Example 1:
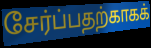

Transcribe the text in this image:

சேர்ப்பதற்காகக்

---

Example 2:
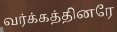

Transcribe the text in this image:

வர்க்கத்தினரே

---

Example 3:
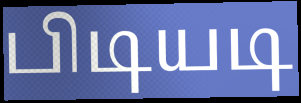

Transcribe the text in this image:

பிடியடி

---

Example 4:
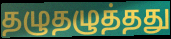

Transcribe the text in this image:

தழுதழுத்தது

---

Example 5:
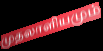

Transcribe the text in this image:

முதலாளியமும்